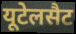
यूटेलसैट